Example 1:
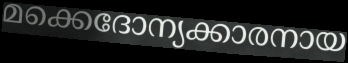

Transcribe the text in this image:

മക്കെദോന്യക്കാരനായ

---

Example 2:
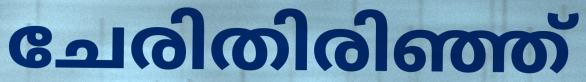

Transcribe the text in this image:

ചേരിതിരിഞ്ഞ്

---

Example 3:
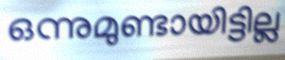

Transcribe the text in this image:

ഒന്നുമുണ്ടായിട്ടില്ല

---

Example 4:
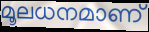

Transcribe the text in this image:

മൂലധനമാണ്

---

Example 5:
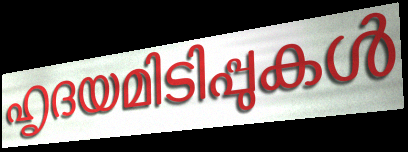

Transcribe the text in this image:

ഹൃദയമിടിപ്പുകൾ